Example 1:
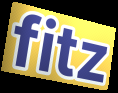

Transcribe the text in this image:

fitz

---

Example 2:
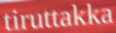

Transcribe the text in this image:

tiruttakka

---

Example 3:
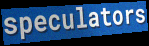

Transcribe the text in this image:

speculators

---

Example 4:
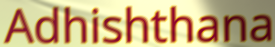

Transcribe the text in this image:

Adhishthana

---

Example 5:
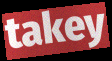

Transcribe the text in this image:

takey